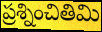
ప్రశ్నించితిమి